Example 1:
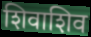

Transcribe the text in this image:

शिवाशिव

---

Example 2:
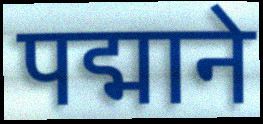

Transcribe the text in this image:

पद्माने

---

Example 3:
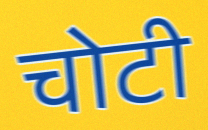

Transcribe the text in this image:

चोटी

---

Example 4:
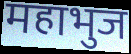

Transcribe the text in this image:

महाभुज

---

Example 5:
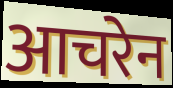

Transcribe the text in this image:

आचरेन